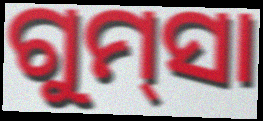
ଗୁମ୍‌ସା